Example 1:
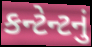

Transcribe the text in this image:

કન્ટેન્ટનું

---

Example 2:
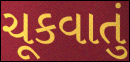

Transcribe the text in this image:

ચૂકવાતું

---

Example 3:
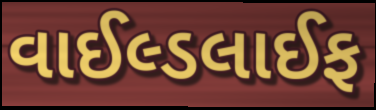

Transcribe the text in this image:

વાઈલ્ડલાઈફ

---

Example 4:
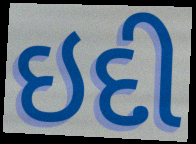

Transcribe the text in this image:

ઇદી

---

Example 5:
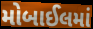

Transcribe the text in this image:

મોબાઈલમાં